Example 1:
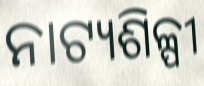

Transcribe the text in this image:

ନାଟ୍ୟଶିଳ୍ପୀ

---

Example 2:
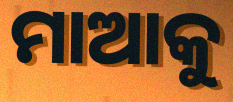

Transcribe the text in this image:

ମାଆକୁ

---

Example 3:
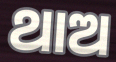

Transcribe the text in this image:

ଥାଅ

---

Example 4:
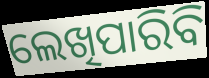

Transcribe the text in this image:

ଲେଖିପାରିବି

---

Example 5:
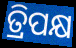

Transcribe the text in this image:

ତ୍ରିପକ୍ଷ